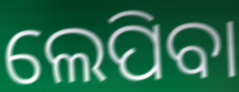
ଲେପିବା